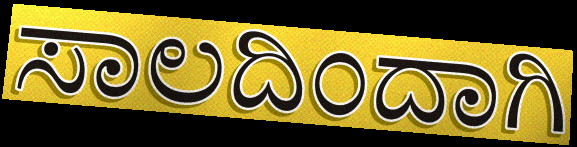
ಸಾಲದಿಂದಾಗಿ